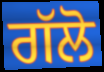
ਗੱਲੋ